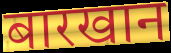
बारखान